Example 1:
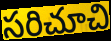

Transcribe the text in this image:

సరిచూచి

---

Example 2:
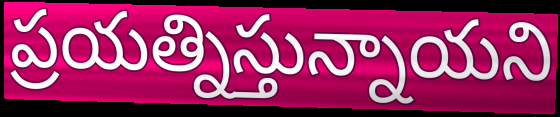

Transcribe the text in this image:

ప్రయత్నిస్తున్నాయని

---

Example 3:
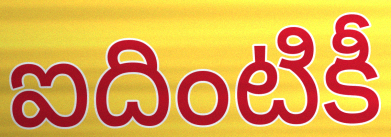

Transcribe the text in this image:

ఐదింటికీ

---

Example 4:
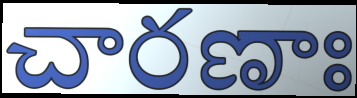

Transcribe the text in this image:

చారణాః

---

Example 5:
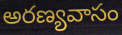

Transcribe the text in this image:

అరణ్యవాసం